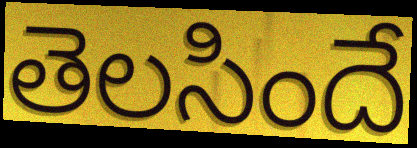
తెలసిందే